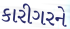
કારીગરને